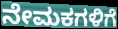
ನೇಮಕಗಳಿಗೆ